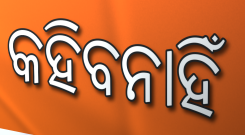
କହିବନାହିଁ